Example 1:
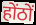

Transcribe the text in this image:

होंठों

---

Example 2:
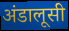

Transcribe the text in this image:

अंडालूसी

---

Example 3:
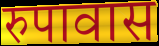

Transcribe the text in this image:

रुपावास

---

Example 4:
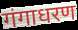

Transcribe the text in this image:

गंगाधरण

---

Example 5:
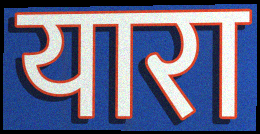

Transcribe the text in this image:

यारा